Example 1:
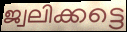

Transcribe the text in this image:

ജ്വലിക്കട്ടെ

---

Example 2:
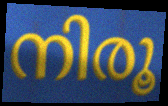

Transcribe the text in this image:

നിരൂ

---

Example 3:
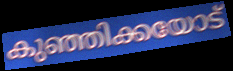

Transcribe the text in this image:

കുഞ്ഞിക്കയോട്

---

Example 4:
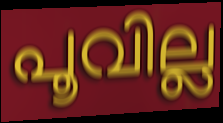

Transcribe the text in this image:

പൂവില്ല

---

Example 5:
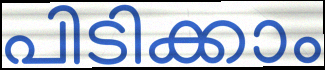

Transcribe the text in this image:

പിടിക്കാം